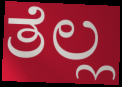
ತೆಲ್ಲ